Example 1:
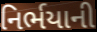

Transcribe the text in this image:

નિર્ભયાની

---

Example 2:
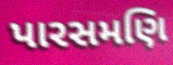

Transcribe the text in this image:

પારસમણિ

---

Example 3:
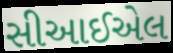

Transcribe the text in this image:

સીઆઈએલ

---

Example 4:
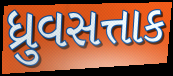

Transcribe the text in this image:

ધ્રુવસત્તાક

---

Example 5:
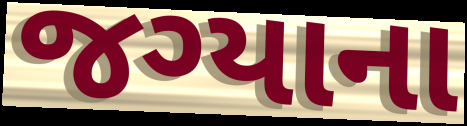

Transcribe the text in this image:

જગ્યાના